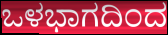
ಒಳಭಾಗದಿಂದ